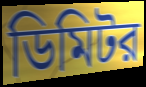
ডিমিটর